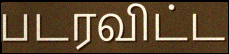
படரவிட்ட